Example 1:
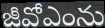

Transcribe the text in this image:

జీవోఎంను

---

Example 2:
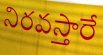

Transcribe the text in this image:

నిరవస్తారే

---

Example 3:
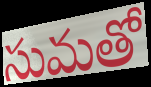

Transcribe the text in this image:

సుమతో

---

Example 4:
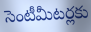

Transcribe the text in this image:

సెంటీమీటర్లకు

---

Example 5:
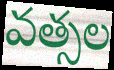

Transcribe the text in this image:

వత్సల